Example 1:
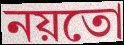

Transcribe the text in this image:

নয়তো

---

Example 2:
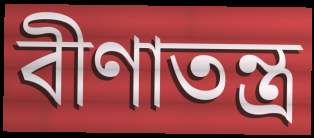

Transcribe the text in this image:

বীণাতন্ত্র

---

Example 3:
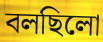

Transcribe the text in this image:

বলছিলো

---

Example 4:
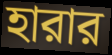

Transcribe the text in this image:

হারার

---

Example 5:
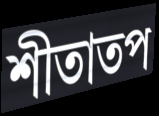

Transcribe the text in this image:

শীতাতপ